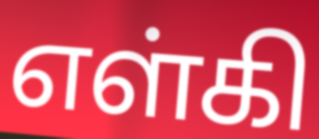
எள்கி